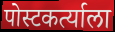
पोस्टकर्त्याला